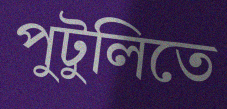
পুটুলিতে